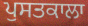
ਪੁਸਤਕਾਲਾ